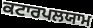
ਕਟਾਰਪਲਯਾਮ